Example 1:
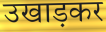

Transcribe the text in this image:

उखाड़कर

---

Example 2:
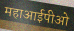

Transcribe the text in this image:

महाआईपीओ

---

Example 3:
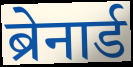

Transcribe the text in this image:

ब्रेनार्ड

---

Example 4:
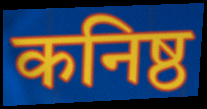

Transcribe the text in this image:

कनिष्ठ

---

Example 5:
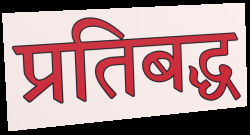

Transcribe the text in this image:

प्रतिबद्ध